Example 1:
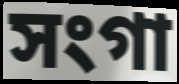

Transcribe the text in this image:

সংগা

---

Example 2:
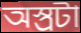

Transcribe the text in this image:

অস্ত্রটা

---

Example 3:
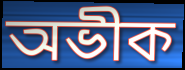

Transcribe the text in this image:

অভীক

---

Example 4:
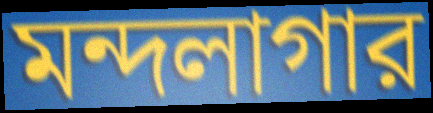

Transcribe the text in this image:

মন্দলাগার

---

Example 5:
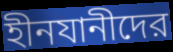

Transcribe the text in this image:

হীনযানীদের